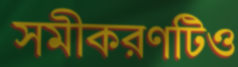
সমীকরণটিও